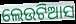
ଲେଉଟିଆସ